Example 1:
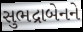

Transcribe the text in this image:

સુભદ્રાબેનને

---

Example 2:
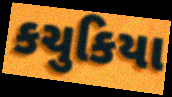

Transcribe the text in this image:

કચુકિયા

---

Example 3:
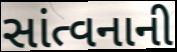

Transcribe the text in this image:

સાંત્વનાની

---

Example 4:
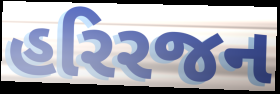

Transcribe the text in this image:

હરિરજન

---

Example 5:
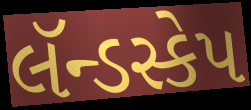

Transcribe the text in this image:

લૅન્ડસ્કેપ